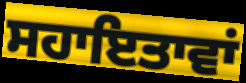
ਸਹਾਇਤਾਵਾਂ